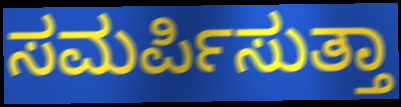
ಸಮರ್ಪಿಸುತ್ತಾ